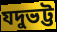
যদুভট্ট